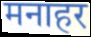
मनाहर